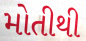
મોતીથી